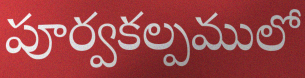
పూర్వకల్పములో